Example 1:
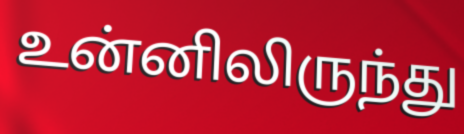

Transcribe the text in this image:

உன்னிலிருந்து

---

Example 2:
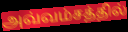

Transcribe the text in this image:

அவ்வம்சத்தில்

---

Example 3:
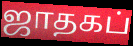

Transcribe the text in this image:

ஜாதகப்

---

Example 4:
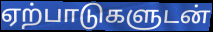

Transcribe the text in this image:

ஏற்பாடுகளுடன்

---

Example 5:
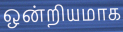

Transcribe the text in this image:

ஒன்றியமாக